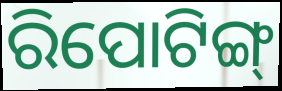
ରିପୋଟିଙ୍ଗ୍